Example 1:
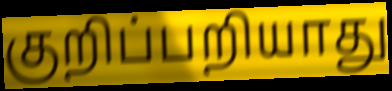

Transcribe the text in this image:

குறிப்பறியாது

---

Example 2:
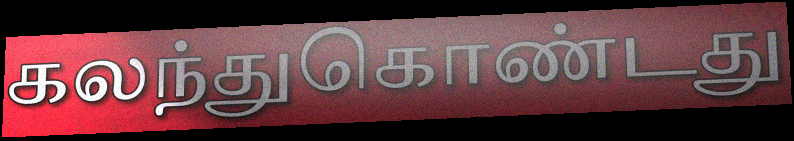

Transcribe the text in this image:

கலந்துகொண்டது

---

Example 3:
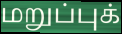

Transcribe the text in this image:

மறுப்புக்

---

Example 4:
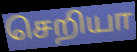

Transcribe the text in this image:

செறியா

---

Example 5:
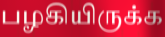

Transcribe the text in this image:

பழகியிருக்க